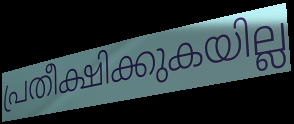
പ്രതീക്ഷിക്കുകയില്ല